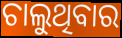
ଚାଲୁଥିବାର